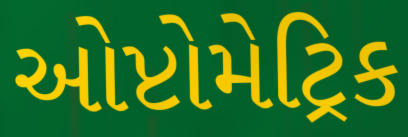
ઓપ્ટોમેટ્રિક